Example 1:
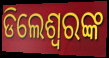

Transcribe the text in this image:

ଡିଲେଶ୍ଵରଙ୍କ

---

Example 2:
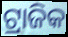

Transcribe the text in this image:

ଟ୍ରାଜିକ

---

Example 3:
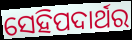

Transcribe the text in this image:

ସେହିପଦାର୍ଥର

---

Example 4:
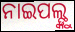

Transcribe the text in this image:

ନାଇପଲ୍ଙ୍କୁ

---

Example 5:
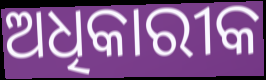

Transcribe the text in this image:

ଅଧିକାରୀକ